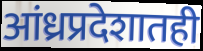
आंध्रप्रदेशातही